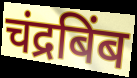
चंद्रबिंब